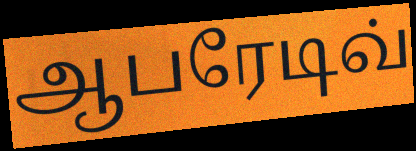
ஆபரேடிவ்